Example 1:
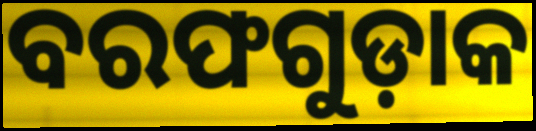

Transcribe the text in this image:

ବରଫଗୁଡ଼ାକ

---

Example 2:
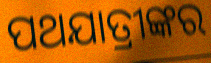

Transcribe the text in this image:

ପଥଯାତ୍ରୀଙ୍କର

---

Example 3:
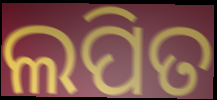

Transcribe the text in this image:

ଲପିତ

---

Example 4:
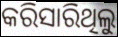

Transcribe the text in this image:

କରିସାରିଥିଲୁ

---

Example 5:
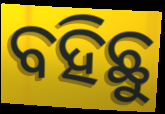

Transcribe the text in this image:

ବହିଛୁ